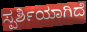
ಸ್ಪರ್ಶಿಯಾಗಿದೆ